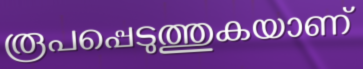
രൂപപ്പെടുത്തുകയാണ്